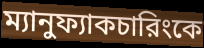
ম্যানুফ্যাকচারিংকে